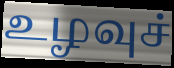
உழவுச்